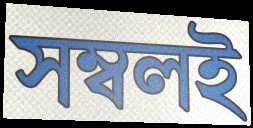
সম্বলই